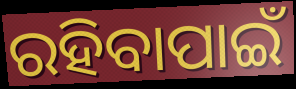
ରହିବାପାଇଁ